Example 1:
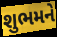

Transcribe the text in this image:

શુભમને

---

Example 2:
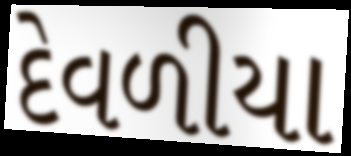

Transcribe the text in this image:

દેવળીયા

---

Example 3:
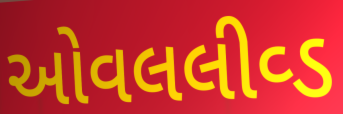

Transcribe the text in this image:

ઓવલલીવ્ડ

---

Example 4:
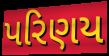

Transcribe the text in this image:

પરિણય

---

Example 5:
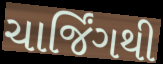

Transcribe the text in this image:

ચાર્જિંગથી